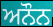
ਅਨੌਨ